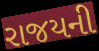
રાજયની